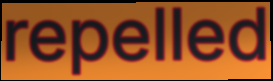
repelled